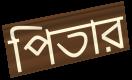
পিতার